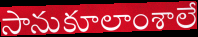
సానుకూలాంశాలే